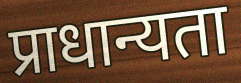
प्राधान्यता